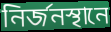
নির্জনস্থানে